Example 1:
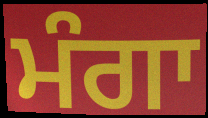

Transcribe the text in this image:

ਮੰਗਾ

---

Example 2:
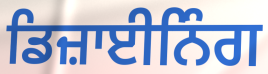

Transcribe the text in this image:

ਡਿਜ਼ਾਈਨਿੰਗ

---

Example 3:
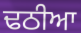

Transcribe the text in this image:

ਢਠੀਆ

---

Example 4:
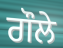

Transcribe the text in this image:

ਗੌਲੇ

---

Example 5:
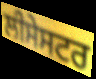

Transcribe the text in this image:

ਲੀਸੇਸਟਰ